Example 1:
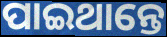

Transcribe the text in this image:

ପାଇଥାନ୍ତେ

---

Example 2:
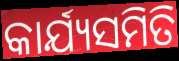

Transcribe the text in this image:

କାର୍ଯ୍ୟସମିତି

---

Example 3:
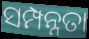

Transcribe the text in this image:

ସମ୍ପନ୍ନତା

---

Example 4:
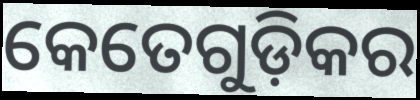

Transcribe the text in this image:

କେତେଗୁଡ଼ିକର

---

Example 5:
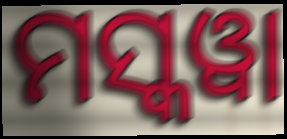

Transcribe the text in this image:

ମସ୍କୱା